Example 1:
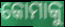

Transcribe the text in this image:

କୋମାକୁ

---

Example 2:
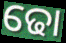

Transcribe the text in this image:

ଢୋ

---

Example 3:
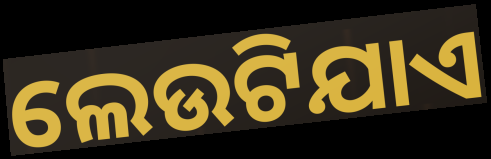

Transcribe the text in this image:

ଲେଉଟିଯାଏ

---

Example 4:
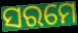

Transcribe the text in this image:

ସରମେ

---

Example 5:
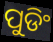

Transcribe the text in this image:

ପୁଡିଂ